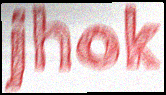
jhok